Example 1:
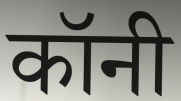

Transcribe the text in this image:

कॉनी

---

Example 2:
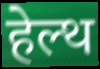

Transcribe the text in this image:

हेल्थ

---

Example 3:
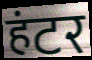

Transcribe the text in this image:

हंटर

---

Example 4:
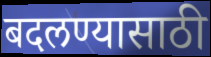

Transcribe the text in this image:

बदलण्यासाठी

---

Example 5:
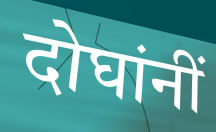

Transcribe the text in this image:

दोघांनीं